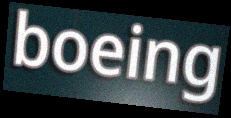
boeing